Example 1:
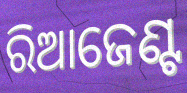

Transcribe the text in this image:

ରିଆଜେଣ୍ଟ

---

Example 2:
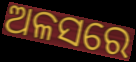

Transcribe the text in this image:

ଅଳସରେ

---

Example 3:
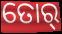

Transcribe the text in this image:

ତୋର୍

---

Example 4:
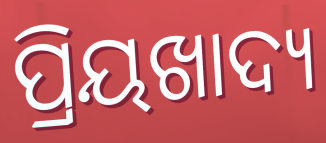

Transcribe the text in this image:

ପ୍ରିୟଖାଦ୍ୟ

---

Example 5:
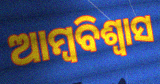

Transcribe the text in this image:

ଆମ୍ବବିଶ୍ଵାସ